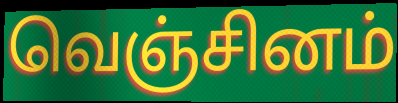
வெஞ்சினம்